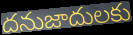
దనుజాదులకు